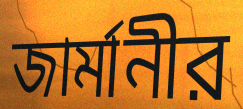
জার্মানীর